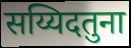
सय्यिदतुना